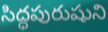
సిద్ధపురుషుని